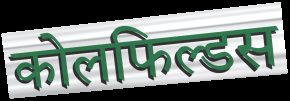
कोलफिल्डस